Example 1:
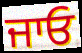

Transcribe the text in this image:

ਜਾਓ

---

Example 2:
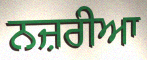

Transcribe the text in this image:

ਨਜ਼ਰੀਆ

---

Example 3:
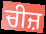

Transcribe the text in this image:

ਚੀਜ਼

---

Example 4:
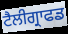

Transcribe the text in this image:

ਟੈਲੀਗ੍ਰਾਫਡ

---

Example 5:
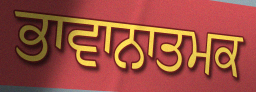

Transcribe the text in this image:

ਭਾਵਾਨਾਤਮਕ